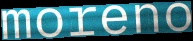
moreno